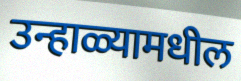
उन्हाळ्यामधील